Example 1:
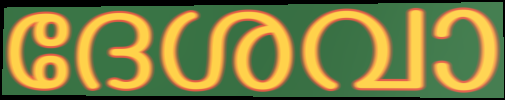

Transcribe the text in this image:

ദേശവാ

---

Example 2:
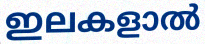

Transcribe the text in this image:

ഇലകളാൽ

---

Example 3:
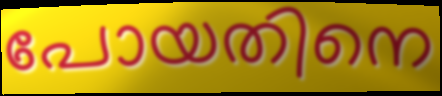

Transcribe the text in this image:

പോയതിനെ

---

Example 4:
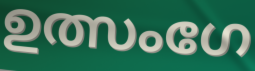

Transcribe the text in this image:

ഉത്സംഗേ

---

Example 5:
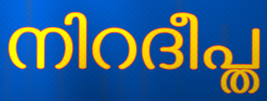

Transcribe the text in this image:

നിറദീപ്ത